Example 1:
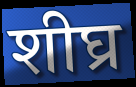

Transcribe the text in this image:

शीघ्र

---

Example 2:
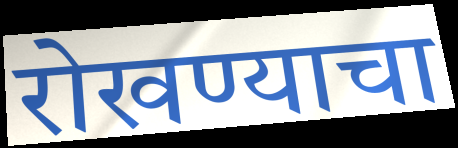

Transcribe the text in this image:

रोखण्याचा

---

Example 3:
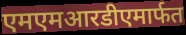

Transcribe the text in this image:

एमएमआरडीएमार्फत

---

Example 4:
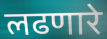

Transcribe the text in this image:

लढणारे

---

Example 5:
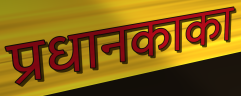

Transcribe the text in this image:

प्रधानकाका